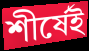
শীর্ষেই